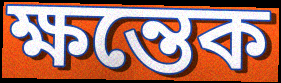
ক্ষন্তেক